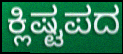
ಕ್ಲಿಷ್ಟಪದ